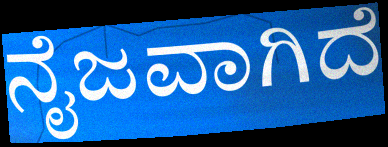
ನೈಜವಾಗಿದೆ